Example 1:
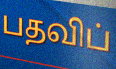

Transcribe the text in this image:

பதவிப்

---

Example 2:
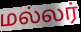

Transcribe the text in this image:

மல்லர்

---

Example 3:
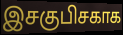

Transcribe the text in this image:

இசகுபிசகாக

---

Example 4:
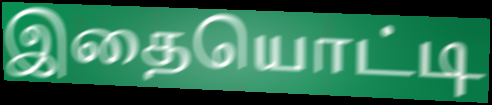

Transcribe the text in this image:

இதையொட்டி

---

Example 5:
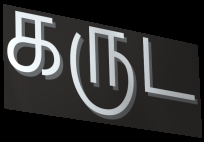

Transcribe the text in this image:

கருட